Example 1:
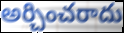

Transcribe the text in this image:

అర్చించరాదు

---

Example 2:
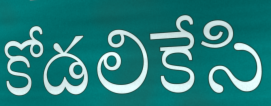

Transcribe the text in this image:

కోడలికేసి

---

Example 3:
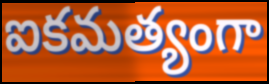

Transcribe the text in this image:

ఐకమత్యంగా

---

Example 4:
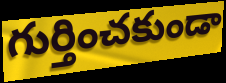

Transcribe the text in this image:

గుర్తించకుండా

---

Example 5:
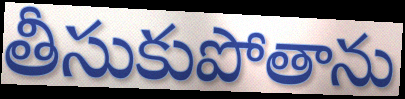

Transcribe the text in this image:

తీసుకుపోతాను